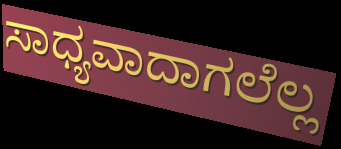
ಸಾಧ್ಯವಾದಾಗಲೆಲ್ಲ